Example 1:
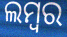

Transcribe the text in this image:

ଲମ୍ବର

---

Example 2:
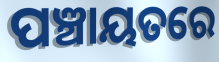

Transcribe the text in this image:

ପଞ୍ଚାୟତରେ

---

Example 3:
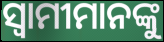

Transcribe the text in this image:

ସ୍ଵାମୀମାନଙ୍କୁ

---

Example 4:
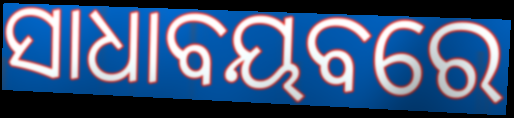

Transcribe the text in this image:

ସାଧାବୟବରେ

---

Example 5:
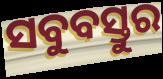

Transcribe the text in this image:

ସବୁବସ୍ତୁର